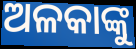
ଅଳକାଙ୍କୁ